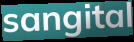
sangital